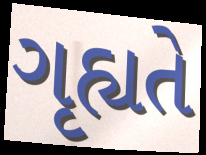
ગૃહ્યતે